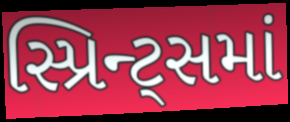
સ્પ્રિન્ટ્સમાં